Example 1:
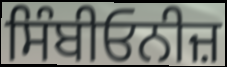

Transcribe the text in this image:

ਸਿੰਬੀਓਨੀਜ਼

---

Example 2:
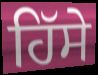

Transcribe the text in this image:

ਹਿੱਸੇ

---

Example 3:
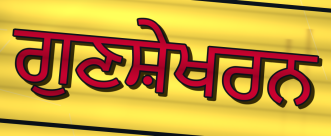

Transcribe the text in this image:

ਗੁਣਸ਼ੇਖਰਨ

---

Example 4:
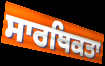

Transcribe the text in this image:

ਸਾਰਥਿਕਤਾ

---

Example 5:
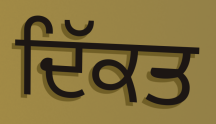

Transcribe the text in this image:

ਦਿੱਕਤ